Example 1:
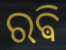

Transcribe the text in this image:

ରଵି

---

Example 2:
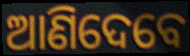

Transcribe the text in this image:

ଆଣିଦେବେ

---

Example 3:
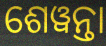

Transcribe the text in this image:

ଶେୱନ୍ତା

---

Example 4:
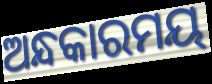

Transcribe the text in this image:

ଅନ୍ଧକାରମୟ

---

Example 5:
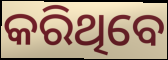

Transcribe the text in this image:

କରିଥିବେ